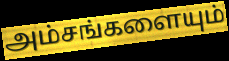
அம்சங்களையும்